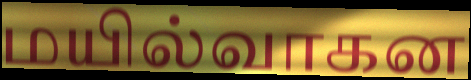
மயில்வாகன